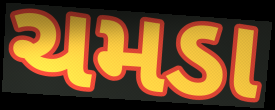
ચમડા